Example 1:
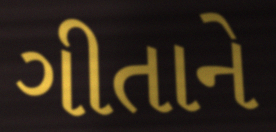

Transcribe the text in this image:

ગીતાને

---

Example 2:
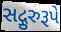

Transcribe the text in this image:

સદ્ગુરુરૂપે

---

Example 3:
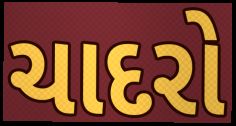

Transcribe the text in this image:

ચાદરો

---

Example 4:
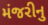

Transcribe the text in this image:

મંજરીનુ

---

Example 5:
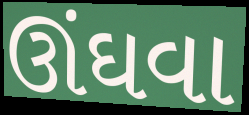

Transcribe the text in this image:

ઊંઘવા